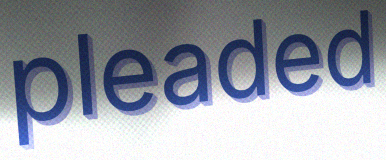
pleaded